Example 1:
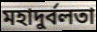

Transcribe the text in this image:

মহাদুর্বলতা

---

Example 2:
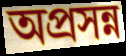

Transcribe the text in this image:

অপ্রসন্ন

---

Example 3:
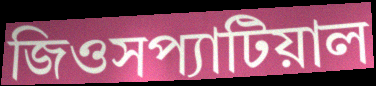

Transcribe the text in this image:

জিওসপ্যাটিয়াল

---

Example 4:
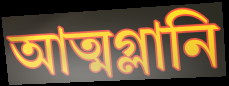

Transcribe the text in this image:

আত্মগ্লানি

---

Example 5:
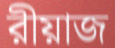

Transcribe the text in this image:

রীয়াজ